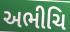
અભીચિ